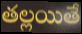
తల్లయితే